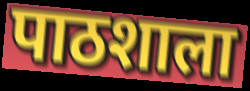
पाठशाला